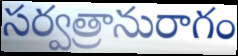
సర్వత్రానురాగం